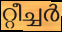
റ്റീച്ചർ